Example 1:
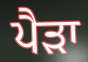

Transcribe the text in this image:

ਪੈੜਾ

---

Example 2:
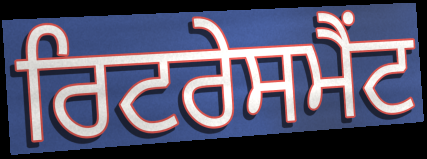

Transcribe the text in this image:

ਰਿਟਰੇਸਮੈਂਟ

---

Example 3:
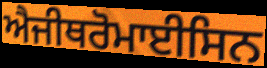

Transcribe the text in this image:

ਐਜੀਥਰੋਮਾਈਸਿਨ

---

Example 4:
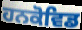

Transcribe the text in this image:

ਹਨਕੋਵਿਡ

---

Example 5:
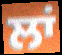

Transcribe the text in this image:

ਲਾਂ